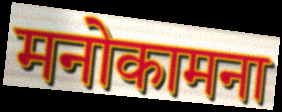
मनोकामना